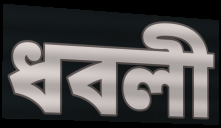
ধবলী